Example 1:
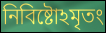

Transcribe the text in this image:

নিবিষ্টোঽমৃতং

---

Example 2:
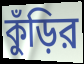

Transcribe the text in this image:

কুঁড়ির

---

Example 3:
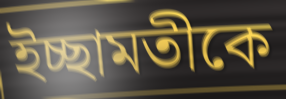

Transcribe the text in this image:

ইচ্ছামতীকে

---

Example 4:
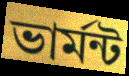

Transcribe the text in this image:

ভার্মন্ট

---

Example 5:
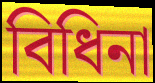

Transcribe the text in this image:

বিধিনা